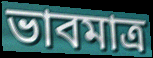
ভাবমাত্র